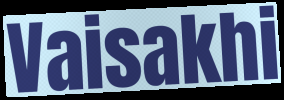
Vaisakhi